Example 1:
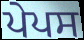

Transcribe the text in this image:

ਪੇਪਸ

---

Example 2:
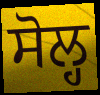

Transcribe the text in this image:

ਸੋਲ੍ਹ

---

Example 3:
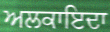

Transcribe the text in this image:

ਅਲਕਾਇਦਾ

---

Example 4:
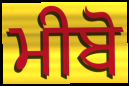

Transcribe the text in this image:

ਮੀਬੋ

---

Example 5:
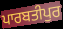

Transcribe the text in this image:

ਪਾਰਬਤੀਪੁਰ